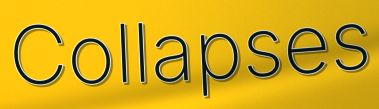
Collapses